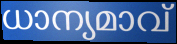
ധാന്യമാവ്